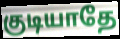
குடியாதே